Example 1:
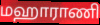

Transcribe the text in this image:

மஹாராணி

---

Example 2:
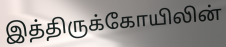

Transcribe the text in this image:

இத்திருக்கோயிலின்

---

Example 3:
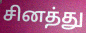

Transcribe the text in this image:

சினத்து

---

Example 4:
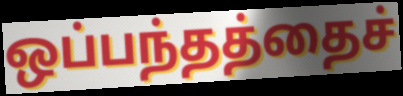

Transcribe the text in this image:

ஒப்பந்தத்தைச்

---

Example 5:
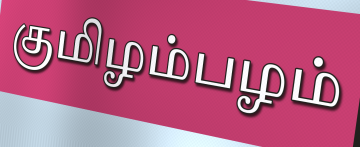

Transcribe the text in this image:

குமிழம்பழம்